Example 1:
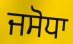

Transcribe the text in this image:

ਜਸੋਧਾ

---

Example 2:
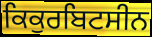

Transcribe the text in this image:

ਕਿਕੁਰਬਿਟਸੀਨ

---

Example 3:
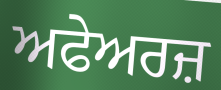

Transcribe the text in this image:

ਅਫੇਅਰਜ਼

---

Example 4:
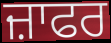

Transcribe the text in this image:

ਜ਼ਾਫਰ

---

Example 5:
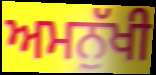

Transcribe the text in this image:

ਅਮਨੁੱਖੀ